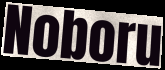
Noboru